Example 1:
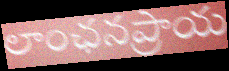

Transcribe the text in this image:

లాంఛనప్రాయ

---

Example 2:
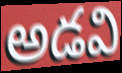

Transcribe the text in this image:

అడవి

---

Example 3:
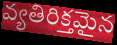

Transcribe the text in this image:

వ్యతిరిక్తమైన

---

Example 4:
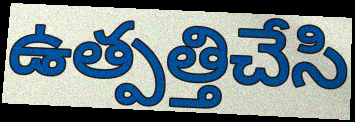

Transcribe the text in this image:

ఉత్పత్తిచేసి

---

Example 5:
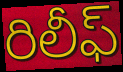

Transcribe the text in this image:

రిలీఫ్